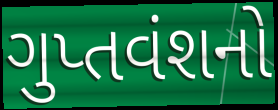
ગુપ્તવંશનો